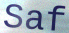
Saf